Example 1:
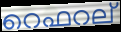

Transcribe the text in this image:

റെഫറല്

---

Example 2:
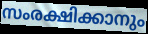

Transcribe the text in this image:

സംരക്ഷിക്കാനും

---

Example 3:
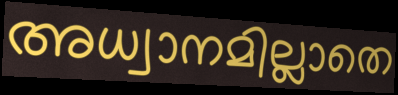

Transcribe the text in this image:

അധ്വാനമില്ലാതെ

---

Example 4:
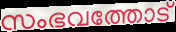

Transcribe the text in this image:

സംഭവത്തോട്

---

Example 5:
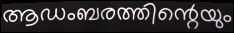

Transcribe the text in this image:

ആഡംബരത്തിന്റെയും